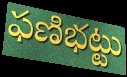
ఫణిభట్టు